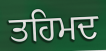
ਤਹਿਮਦ